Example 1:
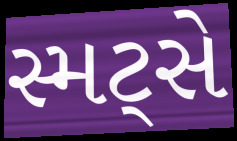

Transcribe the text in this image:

સ્મટ્સે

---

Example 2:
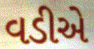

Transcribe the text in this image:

વડીએ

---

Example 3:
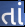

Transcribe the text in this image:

તાં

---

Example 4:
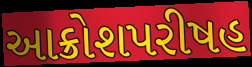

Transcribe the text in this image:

આક્રોશપરીષહ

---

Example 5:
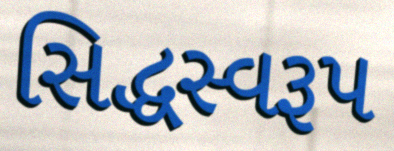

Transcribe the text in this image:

સિદ્ધસ્વરૂપ